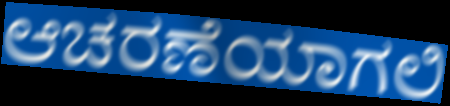
ಆಚರಣೆಯಾಗಲಿ